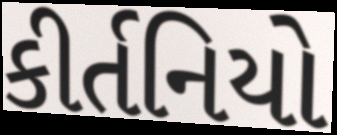
કીર્તનિયો